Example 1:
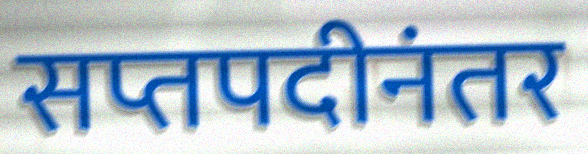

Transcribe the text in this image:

सप्तपदीनंतर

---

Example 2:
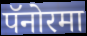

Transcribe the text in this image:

पॅनोरमा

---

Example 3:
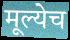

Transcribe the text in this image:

मूल्येच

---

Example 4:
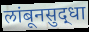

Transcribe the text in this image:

लांबूनसुद्धा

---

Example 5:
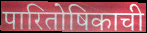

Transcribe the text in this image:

पारितोषिकाची